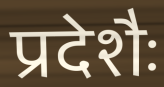
प्रदेशैः